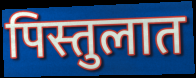
पिस्तुलात